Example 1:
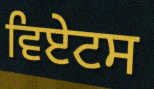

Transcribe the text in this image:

ਵਿਏਟਸ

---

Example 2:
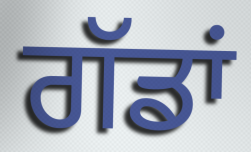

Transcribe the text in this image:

ਗੱਡਾਂ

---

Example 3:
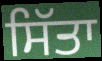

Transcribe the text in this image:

ਸਿੱਤਾ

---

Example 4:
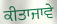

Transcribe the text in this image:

ਕੀਤਾਜਾਵੇ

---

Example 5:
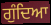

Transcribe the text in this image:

ਗੁੰਦਿਆ